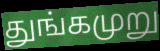
துங்கமுறு